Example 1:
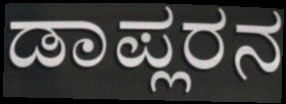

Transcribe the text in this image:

ಡಾಪ್ಲರನ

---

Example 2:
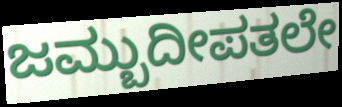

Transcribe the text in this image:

ಜಮ್ಬುದೀಪತಲೇ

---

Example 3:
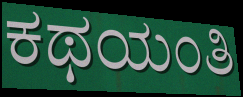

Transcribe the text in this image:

ಕಥಯಂತಿ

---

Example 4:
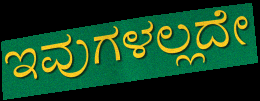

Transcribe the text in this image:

ಇವುಗಳಲ್ಲದೇ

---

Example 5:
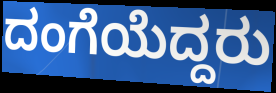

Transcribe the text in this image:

ದಂಗೆಯೆದ್ದರು